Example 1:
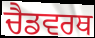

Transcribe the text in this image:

ਚੈਡਵਰਥ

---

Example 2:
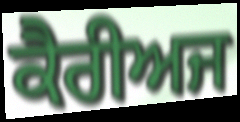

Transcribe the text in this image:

ਕੈਰੀਅਜ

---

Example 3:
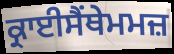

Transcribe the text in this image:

ਕ੍ਰਾਈਸੈਂਥੇਮਮਜ਼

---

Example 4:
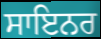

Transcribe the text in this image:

ਸਾਇਨਰ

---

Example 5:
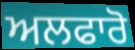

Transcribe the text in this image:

ਅਲਫਾਰੋ